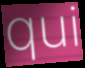
qui